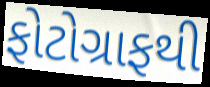
ફોટોગ્રાફથી